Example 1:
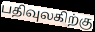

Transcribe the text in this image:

பதிவுலகிற்கு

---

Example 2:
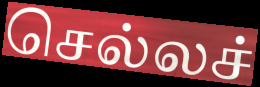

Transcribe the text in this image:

செல்லச்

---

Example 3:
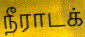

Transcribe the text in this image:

நீராடக்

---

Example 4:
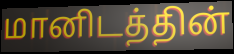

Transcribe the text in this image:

மானிடத்தின்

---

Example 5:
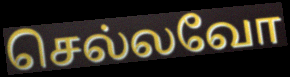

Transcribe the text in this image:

செல்லவோ